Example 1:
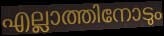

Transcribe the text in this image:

എല്ലാത്തിനോടും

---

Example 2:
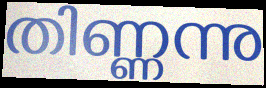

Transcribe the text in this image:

തിണ്ണന്നു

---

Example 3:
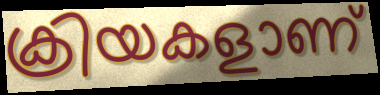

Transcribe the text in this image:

ക്രിയകളാണ്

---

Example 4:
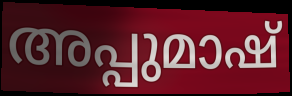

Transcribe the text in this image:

അപ്പുമാഷ്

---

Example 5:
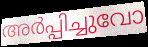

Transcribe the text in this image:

അർപ്പിച്ചുവോ